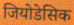
जियोडेसिक